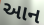
આન